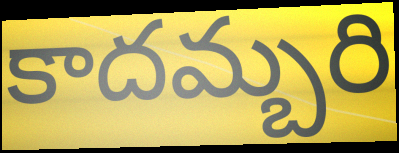
కాదమ్బరి